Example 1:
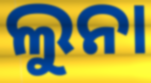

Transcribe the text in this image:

ଲୁନା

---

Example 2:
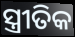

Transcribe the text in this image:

ସ୍ତ୍ରୀତିକ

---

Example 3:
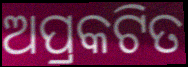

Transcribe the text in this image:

ଅପ୍ରକଟିତ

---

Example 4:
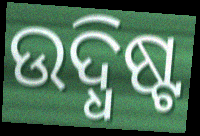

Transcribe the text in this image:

ଉଦ୍ଧିଷ୍ଟ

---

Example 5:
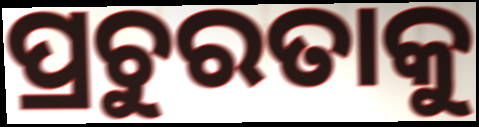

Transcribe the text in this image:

ପ୍ରଚୁରତାକୁ